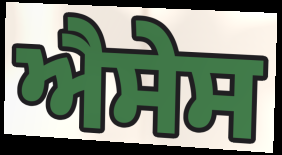
ਐਸੇਸ